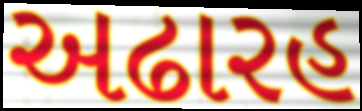
અઢારહ